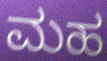
ಮಹ